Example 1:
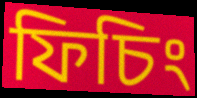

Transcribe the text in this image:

ফিচিং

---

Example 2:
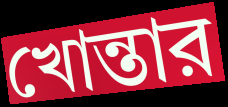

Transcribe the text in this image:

খোন্তার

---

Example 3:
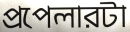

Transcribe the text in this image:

প্রপেলারটা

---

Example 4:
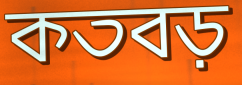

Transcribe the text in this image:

কতবড়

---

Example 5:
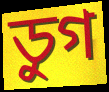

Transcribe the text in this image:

ডুগ